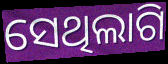
ସେଥିଲାଗି